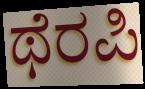
ಥೆರಪಿ